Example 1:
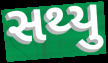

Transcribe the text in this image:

સથ્યુ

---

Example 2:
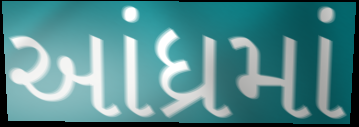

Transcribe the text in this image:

આંધ્રમાં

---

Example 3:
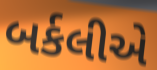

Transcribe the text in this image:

બર્કલીએ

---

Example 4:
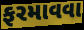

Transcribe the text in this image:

ફરમાવવા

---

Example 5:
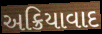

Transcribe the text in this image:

અક્રિયાવાદ